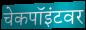
चेकपॉइंटवर